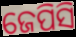
ଜେପିସି